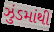
ઝુંડમાંથી